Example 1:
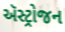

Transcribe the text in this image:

ઍસ્ટ્રોજન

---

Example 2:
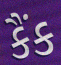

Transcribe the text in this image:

કૈંક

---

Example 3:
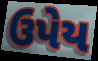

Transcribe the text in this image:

ઉપેય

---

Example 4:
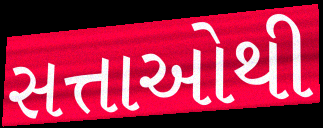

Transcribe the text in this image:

સત્તાઓથી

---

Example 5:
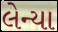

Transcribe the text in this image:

લેન્યા